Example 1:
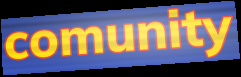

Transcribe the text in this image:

comunity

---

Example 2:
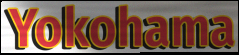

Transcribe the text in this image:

Yokohama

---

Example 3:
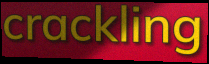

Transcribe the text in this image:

crackling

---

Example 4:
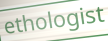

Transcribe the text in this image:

ethologist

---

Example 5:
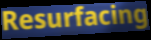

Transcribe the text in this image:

Resurfacing